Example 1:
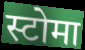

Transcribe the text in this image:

स्टोमा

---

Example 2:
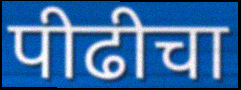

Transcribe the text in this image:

पीढीचा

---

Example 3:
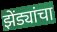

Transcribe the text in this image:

झेंड्यांचा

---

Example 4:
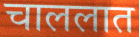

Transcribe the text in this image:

चाललात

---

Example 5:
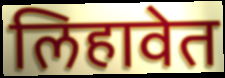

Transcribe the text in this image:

लिहावेत